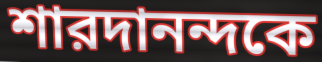
শারদানন্দকে